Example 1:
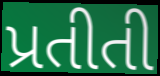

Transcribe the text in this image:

પ્રતીતી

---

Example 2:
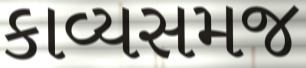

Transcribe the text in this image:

કાવ્યસમજ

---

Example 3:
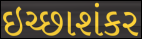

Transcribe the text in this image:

ઇચ્છાશંકર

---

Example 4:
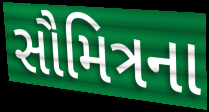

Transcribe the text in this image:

સૌમિત્રના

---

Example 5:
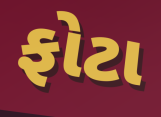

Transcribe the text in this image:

ફોટા